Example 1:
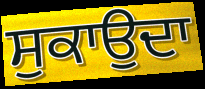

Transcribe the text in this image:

ਸੁਕਾਉਦਾ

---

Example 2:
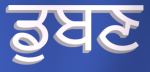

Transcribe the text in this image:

ਡੁਬਣ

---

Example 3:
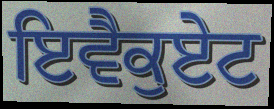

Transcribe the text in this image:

ਇਵੈਕੁਏਟ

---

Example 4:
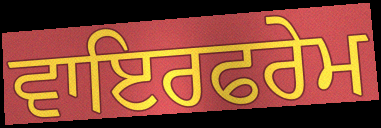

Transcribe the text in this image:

ਵਾਇਰਫਰੇਮ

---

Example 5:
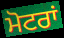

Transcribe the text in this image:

ਮੋਟਰਾਂ